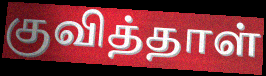
குவித்தாள்